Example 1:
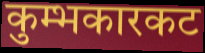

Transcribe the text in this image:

कुम्भकारकट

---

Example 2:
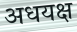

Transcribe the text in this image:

अधयक्ष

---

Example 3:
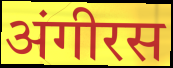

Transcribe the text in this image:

अंगीरस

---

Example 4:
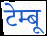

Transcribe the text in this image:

टेम्बू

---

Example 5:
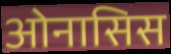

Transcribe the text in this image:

ओनासिस